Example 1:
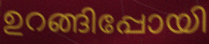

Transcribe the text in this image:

ഉറങ്ങിപ്പോയി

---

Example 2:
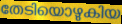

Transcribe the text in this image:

തേടിയൊഴുകിയ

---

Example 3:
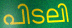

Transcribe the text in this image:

പിടലി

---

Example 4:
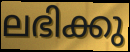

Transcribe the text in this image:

ലഭിക്കു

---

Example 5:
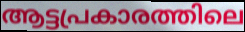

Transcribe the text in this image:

ആട്ടപ്രകാരത്തിലെ